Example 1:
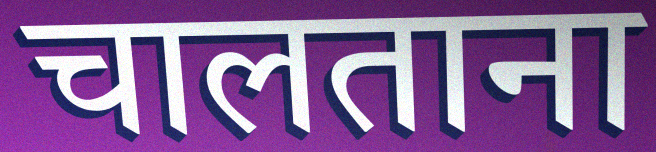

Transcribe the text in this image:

चालताना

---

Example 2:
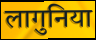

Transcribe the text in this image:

लागुनिया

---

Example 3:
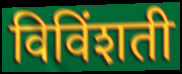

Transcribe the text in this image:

विविंशती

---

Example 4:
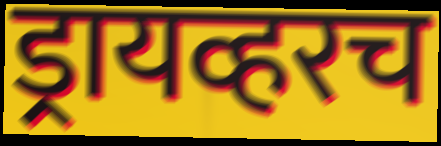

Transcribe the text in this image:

ड्रायव्हरच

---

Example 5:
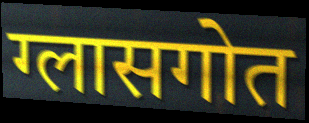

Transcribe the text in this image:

ग्लासगोत